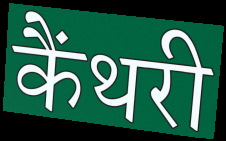
कैंथरी